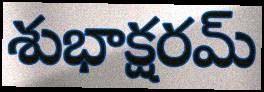
శుభాక్షరమ్